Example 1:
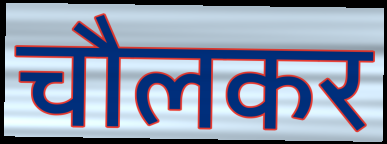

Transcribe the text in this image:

चौलकर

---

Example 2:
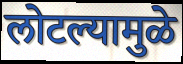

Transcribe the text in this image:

लोटल्यामुळे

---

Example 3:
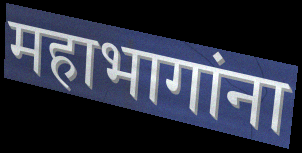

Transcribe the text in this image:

महाभागांना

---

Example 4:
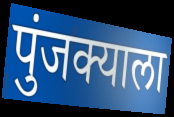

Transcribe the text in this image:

पुंजक्याला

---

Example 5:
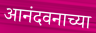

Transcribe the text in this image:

आनंदवनाच्या